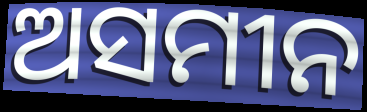
ଅସମୀନ